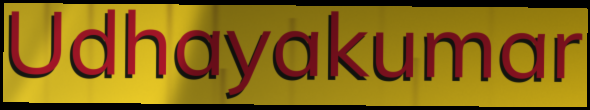
Udhayakumar